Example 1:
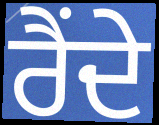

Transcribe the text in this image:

ਰੈਂਦੇ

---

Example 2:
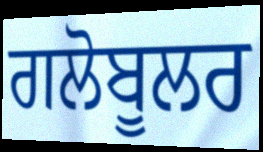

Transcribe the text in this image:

ਗਲੋਬੂਲਰ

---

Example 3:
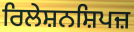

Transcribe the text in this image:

ਰਿਲੇਸ਼ਨਸ਼ਿਪਜ਼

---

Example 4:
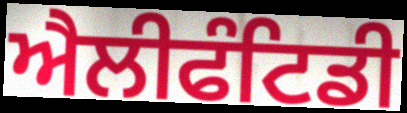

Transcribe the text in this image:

ਐਲੀਫੰਟਿਡੀ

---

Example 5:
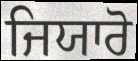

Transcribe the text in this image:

ਜਿਯਾਰੋ